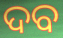
ଦବ